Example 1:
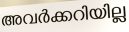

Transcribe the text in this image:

അവർക്കറിയില്ല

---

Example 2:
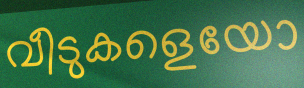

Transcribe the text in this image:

വീടുകളെയോ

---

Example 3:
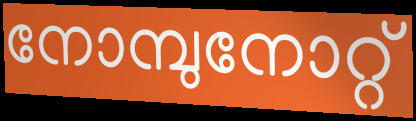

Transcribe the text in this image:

നോമ്പുനോറ്റ്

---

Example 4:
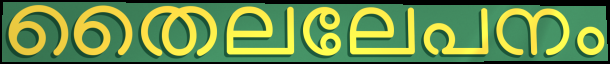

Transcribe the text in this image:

തൈലലേപനം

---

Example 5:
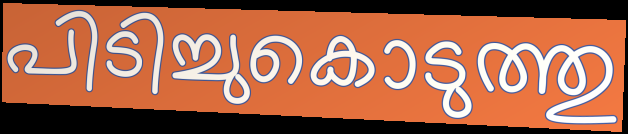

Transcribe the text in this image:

പിടിച്ചുകൊടുത്തു